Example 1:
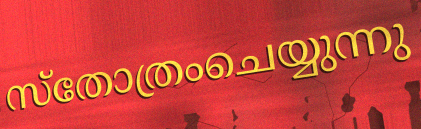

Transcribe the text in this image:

സ്തോത്രംചെയ്യുന്നു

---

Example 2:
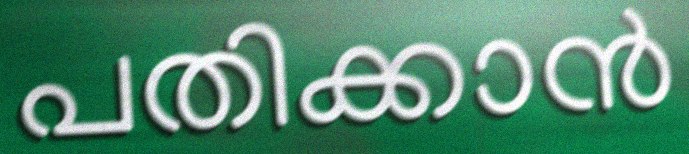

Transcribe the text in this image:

പതിക്കാൻ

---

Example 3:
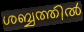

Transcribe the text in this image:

ശബ്ബത്തിൽ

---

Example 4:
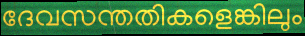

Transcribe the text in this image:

ദേവസന്തതികളെങ്കിലും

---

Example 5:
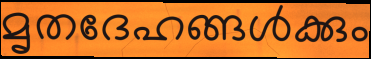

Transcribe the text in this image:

മൃതദേഹങ്ങൾക്കും